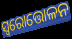
ସ୍ବରୋତ୍ତୋଳନ